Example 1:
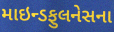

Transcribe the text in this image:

માઇન્ડફુલનેસના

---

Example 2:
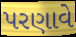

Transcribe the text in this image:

પરણાવે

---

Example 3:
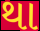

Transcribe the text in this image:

થા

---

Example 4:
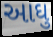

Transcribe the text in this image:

આઘુ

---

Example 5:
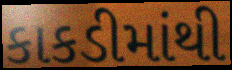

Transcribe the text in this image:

કાકડીમાંથી